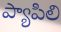
ప్యాపిలి